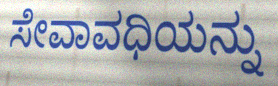
ಸೇವಾವಧಿಯನ್ನು